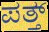
ಪತ್ತ್